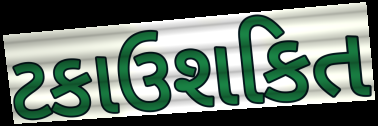
ટકાઉશકિત